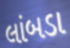
લાંબડા